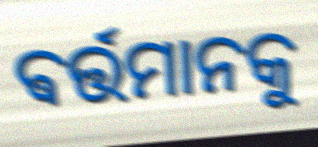
ଵର୍ତ୍ତମାନକୁ